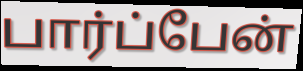
பார்ப்பேன்